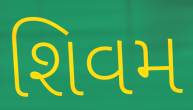
શિવમ